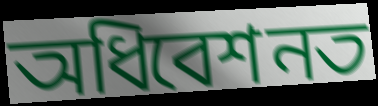
অধিবেশনত